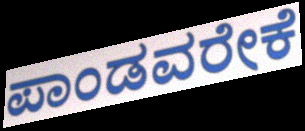
ಪಾಂಡವರೇಕೆ